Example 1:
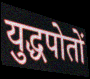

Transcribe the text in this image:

युद्धपोतों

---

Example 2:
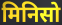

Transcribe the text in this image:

मिनिसो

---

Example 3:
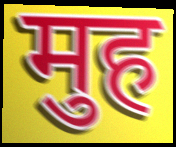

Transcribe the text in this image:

मुह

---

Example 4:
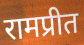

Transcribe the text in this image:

रामप्रीत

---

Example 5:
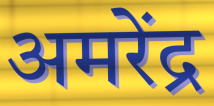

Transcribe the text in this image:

अमरेंद्र